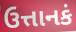
ઉત્તાનકં